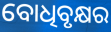
ବୋଧିବୃକ୍ଷର